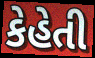
કેહેતી